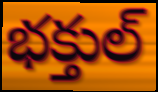
భక్తుల్